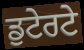
ਡੁਟੇਰਟੇ